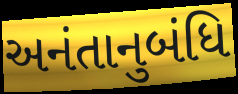
અનંતાનુબંધિ